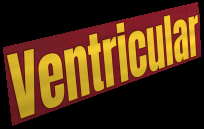
Ventricular